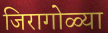
जिरागोळ्या